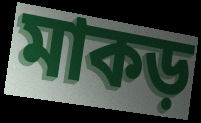
মাকড়